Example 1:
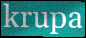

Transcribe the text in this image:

krupa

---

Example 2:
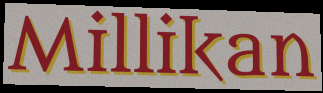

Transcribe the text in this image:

Millikan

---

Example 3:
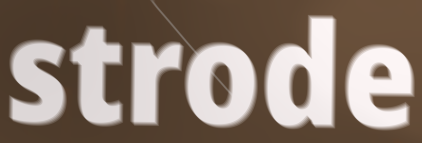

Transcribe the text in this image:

strode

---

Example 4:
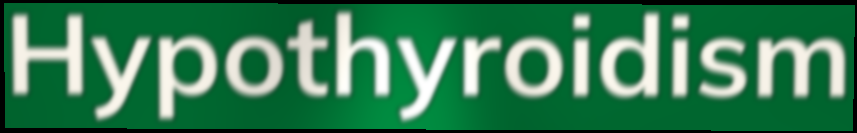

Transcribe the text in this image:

Hypothyroidism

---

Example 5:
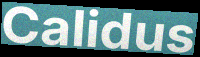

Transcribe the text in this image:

Calidus